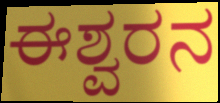
ಈಶ್ವರನ